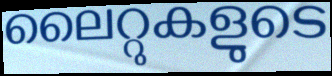
ലൈറ്റുകളുടെ